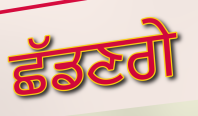
ਛੱਡਣਗੇ